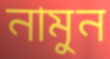
নামুন